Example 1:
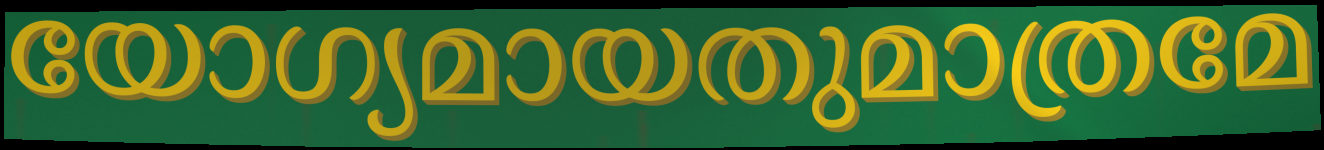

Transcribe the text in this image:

യോഗ്യമായതുമാത്രമേ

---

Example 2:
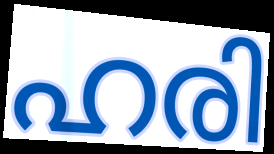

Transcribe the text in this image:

ഹരി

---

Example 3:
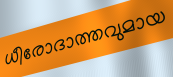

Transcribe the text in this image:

ധീരോദാത്തവുമായ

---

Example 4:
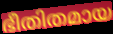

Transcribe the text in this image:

ഭീതിതമായ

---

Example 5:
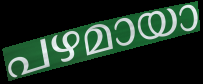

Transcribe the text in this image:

പഴമായാ